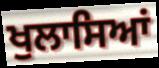
ਖੁਲਾਸਿਆਂ